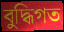
বুদ্ধিগত